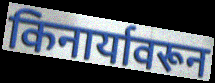
किनार्यावरून